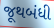
જૂથબંધી